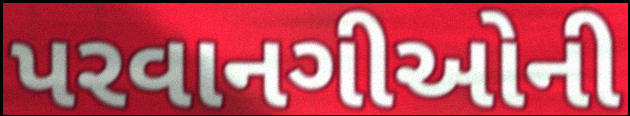
પરવાનગીઓની